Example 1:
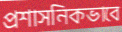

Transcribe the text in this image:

প্রশাসনিকভাবে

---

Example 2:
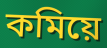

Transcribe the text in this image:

কমিয়ে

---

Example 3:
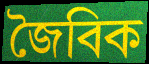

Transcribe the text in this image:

জৈবিক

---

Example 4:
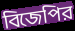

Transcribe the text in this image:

বিজেপির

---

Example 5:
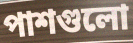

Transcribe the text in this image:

পাশগুলো